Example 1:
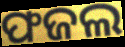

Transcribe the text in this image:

ଫଜଲ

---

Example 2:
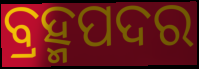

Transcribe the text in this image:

ବ୍ରହ୍ମପଦର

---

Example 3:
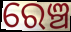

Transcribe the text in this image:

ରେଞ୍ଚ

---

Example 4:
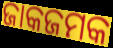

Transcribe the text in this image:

ଜାକଜମକ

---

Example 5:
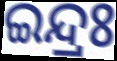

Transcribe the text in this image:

ଇନ୍ଦ୍ରଃ